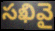
సఖివై